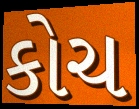
કોચ